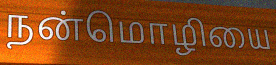
நன்மொழியை